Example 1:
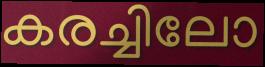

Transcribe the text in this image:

കരച്ചിലോ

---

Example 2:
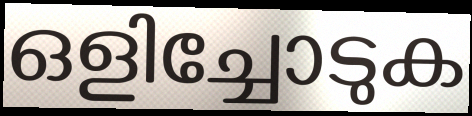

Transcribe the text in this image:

ഒളിച്ചോടുക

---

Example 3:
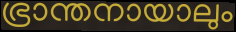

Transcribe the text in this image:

ഭ്രാന്തനായാലും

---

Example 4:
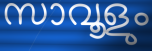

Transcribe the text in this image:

സാവൂളും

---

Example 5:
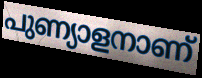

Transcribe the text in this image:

പുണ്യാളനാണ്